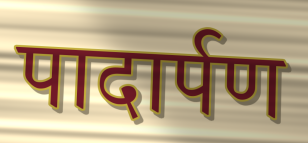
पादार्पण